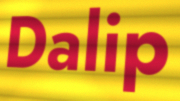
Dalip